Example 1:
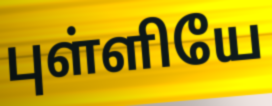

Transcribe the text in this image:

புள்ளியே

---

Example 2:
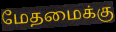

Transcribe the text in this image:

மேதமைக்கு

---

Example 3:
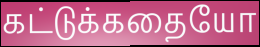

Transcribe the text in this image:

கட்டுக்கதையோ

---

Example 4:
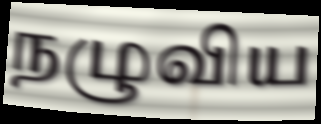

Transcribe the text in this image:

நழுவிய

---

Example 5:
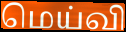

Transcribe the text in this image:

மெய்வி